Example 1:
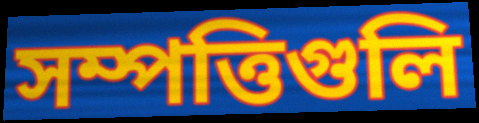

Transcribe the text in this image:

সম্পত্তিগুলি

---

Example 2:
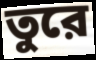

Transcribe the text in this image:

তুরে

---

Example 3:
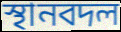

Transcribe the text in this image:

স্থানবদল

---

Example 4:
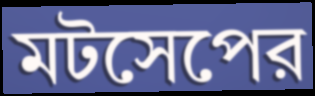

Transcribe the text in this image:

মটসেপের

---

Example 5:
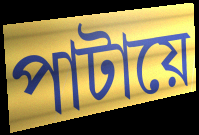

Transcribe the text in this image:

পাটায়ে